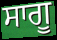
ਸਾਗੂ